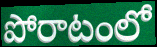
పోరాటంలో